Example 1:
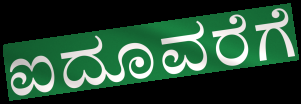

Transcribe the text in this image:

ಐದೂವರೆಗೆ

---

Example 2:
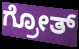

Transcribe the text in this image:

ಗ್ರೋತ್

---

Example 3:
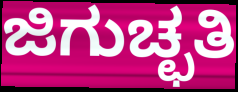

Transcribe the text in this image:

ಜಿಗುಚ್ಛತಿ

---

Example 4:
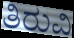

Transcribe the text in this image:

ತಿರುವಿ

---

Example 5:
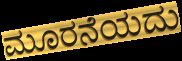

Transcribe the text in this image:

ಮೂರನೆಯದು